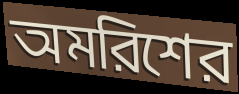
অমরিশের